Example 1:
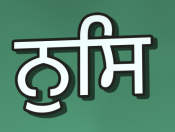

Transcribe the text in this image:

ਨੁਸਿ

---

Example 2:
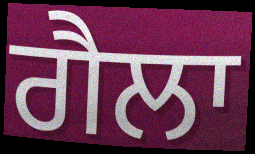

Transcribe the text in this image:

ਗੈਲਾ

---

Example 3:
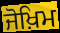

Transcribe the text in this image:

ਜੋਖ਼ਿਮ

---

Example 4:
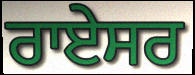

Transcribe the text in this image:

ਰਾਏਸਰ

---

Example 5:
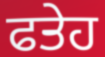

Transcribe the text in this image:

ਫਤੇਹ